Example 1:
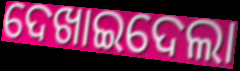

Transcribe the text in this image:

ଦେଖାଇଦେଲା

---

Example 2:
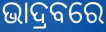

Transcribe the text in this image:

ଭାଦ୍ରବରେ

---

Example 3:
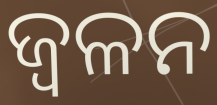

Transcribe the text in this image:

ଜ୍ୱଳନ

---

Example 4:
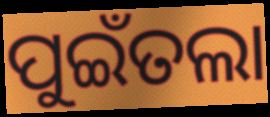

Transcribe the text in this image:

ପୁଇଁତଲା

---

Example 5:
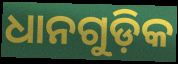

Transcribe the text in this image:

ଧାନଗୁଡ଼ିକ